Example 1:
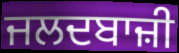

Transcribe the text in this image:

ਜਲਦਬਾਜ਼ੀ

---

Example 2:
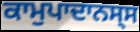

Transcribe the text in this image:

ਕਾਮੁਪਾਦਾਨਸ੍ਸ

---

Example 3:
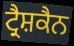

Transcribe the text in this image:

ਟ੍ਰੈਸ਼ਕੈਨ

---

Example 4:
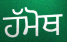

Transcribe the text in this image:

ਹੱਮੋਥ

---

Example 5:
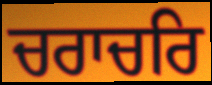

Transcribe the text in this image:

ਚਰਾਚਰਿ